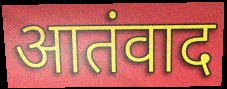
आतंवाद